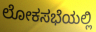
ಲೋಕಸಭೆಯಲ್ಲಿ